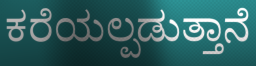
ಕರೆಯಲ್ಪಡುತ್ತಾನೆ